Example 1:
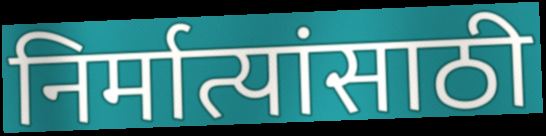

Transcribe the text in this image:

निर्मात्यांसाठी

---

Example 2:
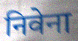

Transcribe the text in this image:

निवेना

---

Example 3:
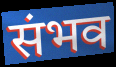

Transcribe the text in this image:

संभव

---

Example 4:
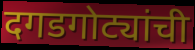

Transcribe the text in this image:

दगडगोट्यांची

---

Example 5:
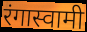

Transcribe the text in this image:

रंगास्वामी